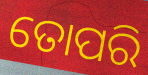
ତୋପରି